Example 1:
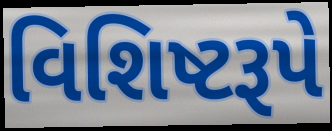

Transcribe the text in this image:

વિશિષ્ટરૂપે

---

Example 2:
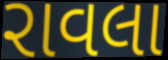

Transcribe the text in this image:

રાવલા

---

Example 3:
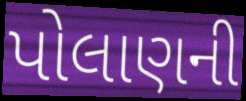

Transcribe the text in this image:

પોલાણની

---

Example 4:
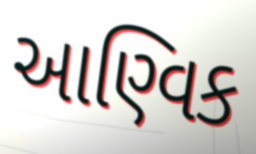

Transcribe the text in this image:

આણ્વિક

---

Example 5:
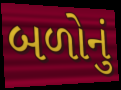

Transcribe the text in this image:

બળોનું